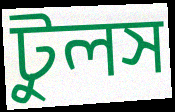
টুলস